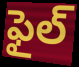
ఫైల్